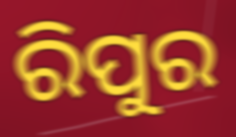
ରିପୁର